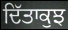
ਦਿੱਤਾਕੁਝ